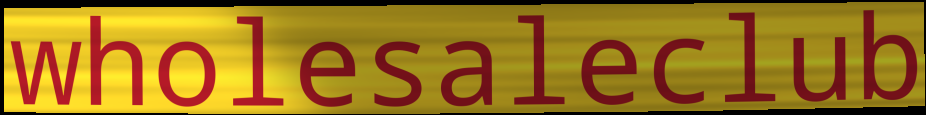
wholesaleclub